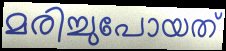
മരിച്ചുപോയത്